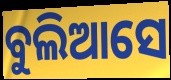
ବୁଲିଆସେ